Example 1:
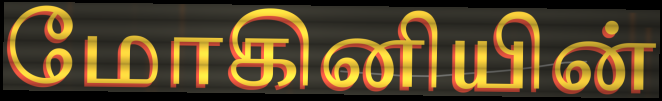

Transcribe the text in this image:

மோகினியின்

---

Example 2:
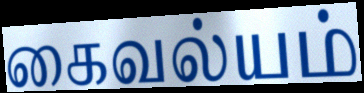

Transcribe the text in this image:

கைவல்யம்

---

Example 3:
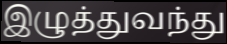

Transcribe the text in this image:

இழுத்துவந்து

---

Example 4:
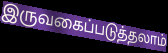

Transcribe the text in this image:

இருவகைப்படுத்தலாம்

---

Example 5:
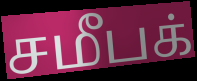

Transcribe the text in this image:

சமீபக்